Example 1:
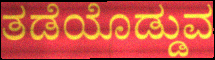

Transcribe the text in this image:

ತಡೆಯೊಡ್ಡುವ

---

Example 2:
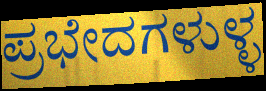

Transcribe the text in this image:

ಪ್ರಭೇದಗಳುಳ್ಳ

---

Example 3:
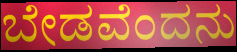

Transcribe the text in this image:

ಬೇಡವೆಂದನು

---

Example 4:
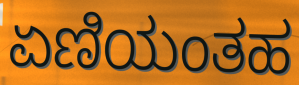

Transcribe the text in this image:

ಏಣಿಯಂತಹ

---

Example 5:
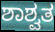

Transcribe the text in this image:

ಶಾಶ್ವತ